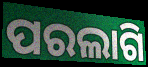
ପରଲାଗି